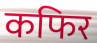
कफिर